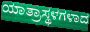
ಯಾತ್ರಾಸ್ಥಳಗಳಾದ